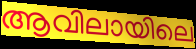
ആവിലായിലെ